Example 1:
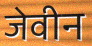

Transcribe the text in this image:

जेवीन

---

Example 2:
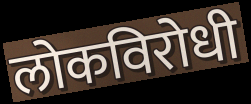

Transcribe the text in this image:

लोकविरोधी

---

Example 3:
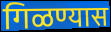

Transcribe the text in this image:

गिळण्यास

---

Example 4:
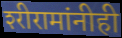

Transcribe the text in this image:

श्रीरामांनीही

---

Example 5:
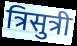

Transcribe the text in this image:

त्रिसुत्री